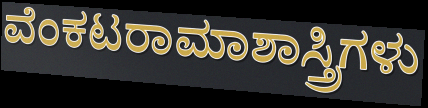
ವೆಂಕಟರಾಮಾಶಾಸ್ತ್ರಿಗಳು